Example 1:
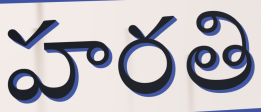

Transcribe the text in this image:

హరతి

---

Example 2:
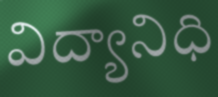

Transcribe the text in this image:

విద్యానిధి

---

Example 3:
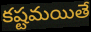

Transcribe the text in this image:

కష్టమయితే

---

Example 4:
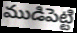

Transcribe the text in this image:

ముడిపెట్టి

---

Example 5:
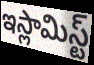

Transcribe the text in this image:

ఇస్లామిస్ట్